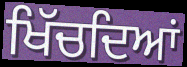
ਖਿੱਚਦਿਆਂ